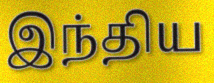
இந்திய